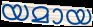
യമായ